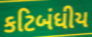
કટિબંધીય